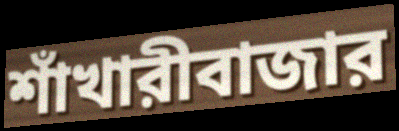
শাঁখারীবাজার